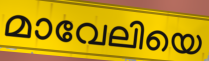
മാവേലിയെ